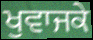
ਖੁਵਾਜਕੇ